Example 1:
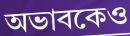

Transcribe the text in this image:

অভাবকেও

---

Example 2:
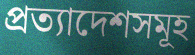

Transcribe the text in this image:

প্রত্যাদেশসমূহ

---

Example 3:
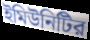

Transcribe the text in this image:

ইমিউনিটির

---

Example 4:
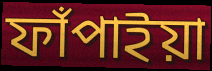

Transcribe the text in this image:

ফাঁপাইয়া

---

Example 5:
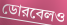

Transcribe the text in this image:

ডোরবেলও